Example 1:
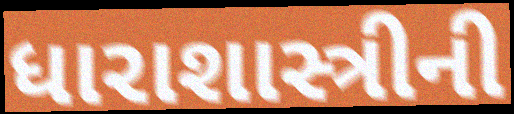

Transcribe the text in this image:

ધારાશાસ્ત્રીની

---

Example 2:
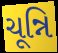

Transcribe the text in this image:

ચૂન્નિ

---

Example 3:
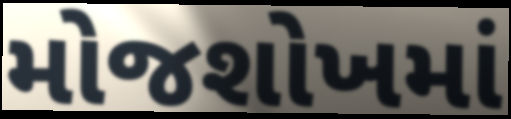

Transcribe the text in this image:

મોજશોખમાં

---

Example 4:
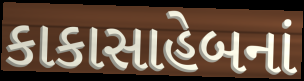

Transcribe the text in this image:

કાકાસાહેબનાં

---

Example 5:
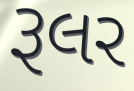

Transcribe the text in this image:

રૂલર